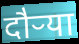
दौऱ्या